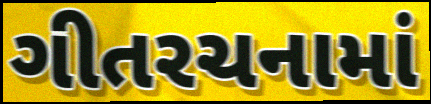
ગીતરચનામાં